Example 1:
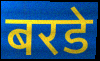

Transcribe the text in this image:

बरडे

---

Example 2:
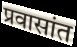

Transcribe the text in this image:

प्रवासांत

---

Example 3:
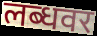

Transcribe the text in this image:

लब्धवर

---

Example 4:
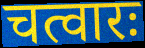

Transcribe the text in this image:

चत्वारः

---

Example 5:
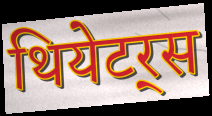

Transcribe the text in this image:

थियेटर्स